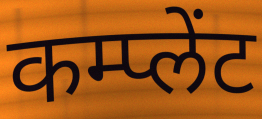
कम्प्लेंट